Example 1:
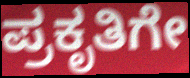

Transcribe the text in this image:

ಪ್ರಕೃತಿಗೇ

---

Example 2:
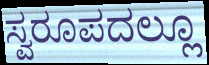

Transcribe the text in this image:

ಸ್ವರೂಪದಲ್ಲೂ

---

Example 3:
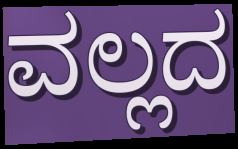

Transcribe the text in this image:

ವಲ್ಲದ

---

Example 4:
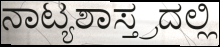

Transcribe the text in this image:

ನಾಟ್ಯಶಾಸ್ತ್ರದಲ್ಲಿ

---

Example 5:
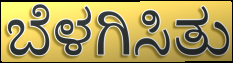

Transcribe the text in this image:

ಬೆಳಗಿಸಿತು